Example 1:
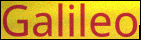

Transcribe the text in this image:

Galileo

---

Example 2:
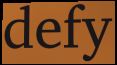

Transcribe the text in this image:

defy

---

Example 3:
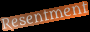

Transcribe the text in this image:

Resentment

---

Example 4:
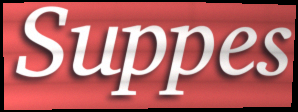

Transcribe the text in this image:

Suppes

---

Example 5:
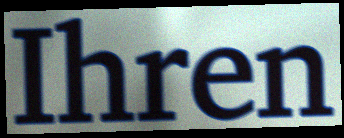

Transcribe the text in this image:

Ihren